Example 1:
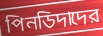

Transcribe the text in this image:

পিনডিদাদের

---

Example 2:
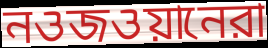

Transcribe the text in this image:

নওজওয়ানেরা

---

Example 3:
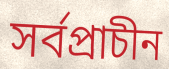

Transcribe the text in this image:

সর্বপ্রাচীন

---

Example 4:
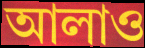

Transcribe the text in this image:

আলাও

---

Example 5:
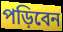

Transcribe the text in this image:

পড়িবেন